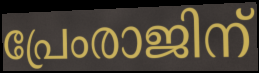
പ്രേംരാജിന്